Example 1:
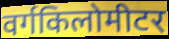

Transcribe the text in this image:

वर्गकिलोमीटर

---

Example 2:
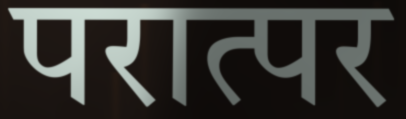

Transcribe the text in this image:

परात्‍पर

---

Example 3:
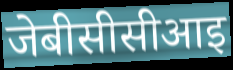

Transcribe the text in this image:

जेबीसीसीआइ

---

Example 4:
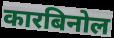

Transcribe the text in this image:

कारबिनोल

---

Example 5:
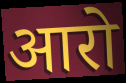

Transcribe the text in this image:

आरो